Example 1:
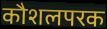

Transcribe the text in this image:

कौशलपरक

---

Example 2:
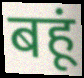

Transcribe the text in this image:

बहूं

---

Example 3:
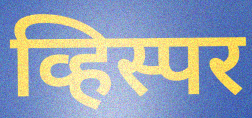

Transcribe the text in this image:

व्हिस्पर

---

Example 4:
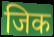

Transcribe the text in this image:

जिक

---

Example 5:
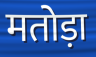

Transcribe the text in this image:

मतोड़ा